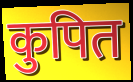
कुपित